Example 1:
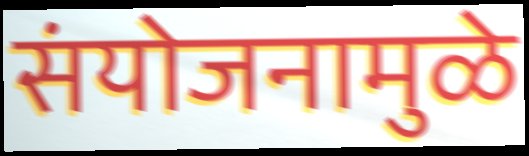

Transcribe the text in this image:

संयोजनामुळे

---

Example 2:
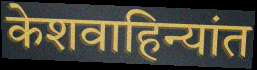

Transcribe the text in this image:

केशवाहिन्यांत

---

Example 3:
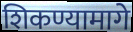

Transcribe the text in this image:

शिकण्यामागे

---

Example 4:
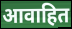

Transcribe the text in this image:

आवाहित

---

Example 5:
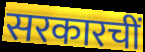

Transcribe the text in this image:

सरकारचीं